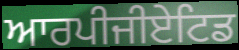
ਆਰਪੀਜੀਏਟਿਡ